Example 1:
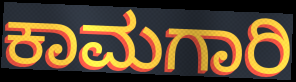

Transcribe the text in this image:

ಕಾಮಗಾರಿ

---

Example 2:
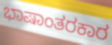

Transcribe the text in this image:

ಭಾಷಾಂತರಕಾರ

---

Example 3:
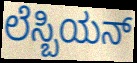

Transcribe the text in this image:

ಲೆಸ್ಬಿಯನ್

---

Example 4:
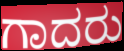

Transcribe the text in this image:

ಗಾದರು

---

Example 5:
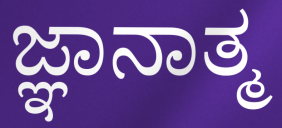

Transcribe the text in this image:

ಜ್ಞಾನಾತ್ಮ